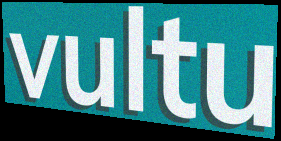
vultu